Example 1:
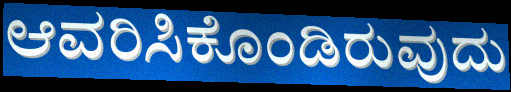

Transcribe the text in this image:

ಆವರಿಸಿಕೊಂಡಿರುವುದು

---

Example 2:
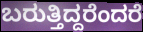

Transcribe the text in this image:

ಬರುತ್ತಿದ್ದರೆಂದರೆ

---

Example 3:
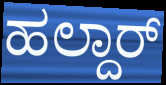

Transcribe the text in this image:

ಹಲ್ದಾರ್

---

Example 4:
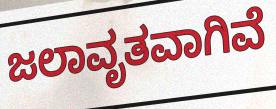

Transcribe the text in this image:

ಜಲಾವೃತವಾಗಿವೆ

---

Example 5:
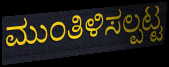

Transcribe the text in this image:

ಮುಂತಿಳಿಸಲ್ಪಟ್ಟ